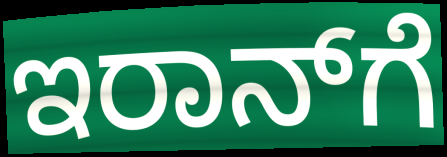
ಇರಾನ್‌ಗೆ